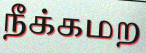
நீக்கமற